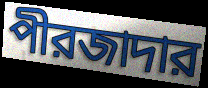
পীরজাদার